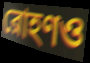
রোহণও